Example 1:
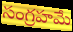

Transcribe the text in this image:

సంగ్రహమే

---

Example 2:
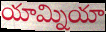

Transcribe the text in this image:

యామ్నియా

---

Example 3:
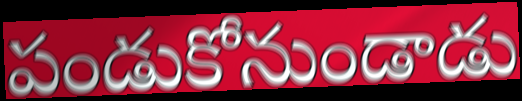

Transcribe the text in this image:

పండుకోనుండాడు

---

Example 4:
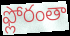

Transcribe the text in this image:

ఫ్లోరంతా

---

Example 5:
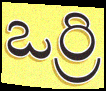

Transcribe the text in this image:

ఒర్రి